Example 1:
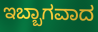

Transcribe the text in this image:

ಇಬ್ಬಾಗವಾದ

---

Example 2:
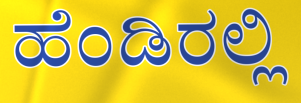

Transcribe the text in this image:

ಹೆಂಡಿರಲ್ಲಿ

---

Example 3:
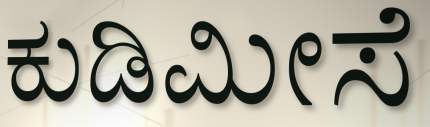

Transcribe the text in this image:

ಕುಡಿಮೀಸೆ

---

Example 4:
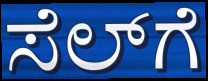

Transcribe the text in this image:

ಸೆಲ್‍ಗೆ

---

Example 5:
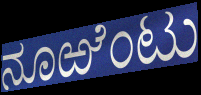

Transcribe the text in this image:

ನೂಱೆಂಟು